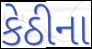
કેઠીના